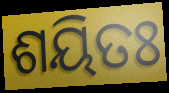
ଶୟିତଃ